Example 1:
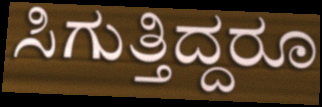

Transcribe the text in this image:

ಸಿಗುತ್ತಿದ್ದರೂ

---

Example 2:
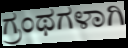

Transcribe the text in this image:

ಗ್ರಂಥಗಳಾಗಿ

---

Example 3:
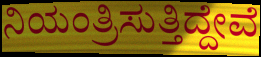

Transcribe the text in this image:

ನಿಯಂತ್ರಿಸುತ್ತಿದ್ದೇವೆ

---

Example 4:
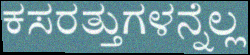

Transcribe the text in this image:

ಕಸರತ್ತುಗಳನ್ನೆಲ್ಲ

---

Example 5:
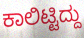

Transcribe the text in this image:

ಕಾಲಿಟ್ಟಿದ್ದು